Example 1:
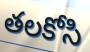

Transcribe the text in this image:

తలకోసి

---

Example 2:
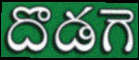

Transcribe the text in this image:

దొడగె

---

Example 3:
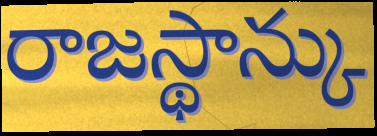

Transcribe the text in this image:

రాజస్థాన్కు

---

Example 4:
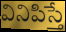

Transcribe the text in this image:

వినిపిస్తే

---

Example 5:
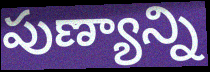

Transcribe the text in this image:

పుణ్యాన్ని